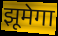
झूमेगा